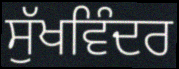
ਸੁੱਖਵਿੰਦਰ